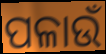
ପଳାଉଁ